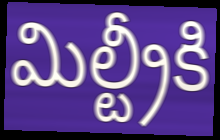
మిల్ట్రీకి